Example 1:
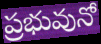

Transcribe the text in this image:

ప్రభువునో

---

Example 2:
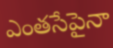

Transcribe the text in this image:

ఎంతసేపైనా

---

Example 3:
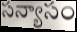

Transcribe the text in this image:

సన్యాసం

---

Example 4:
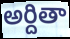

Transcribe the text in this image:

అర్దితా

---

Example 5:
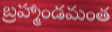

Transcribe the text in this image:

బ్రహ్మాండమంత